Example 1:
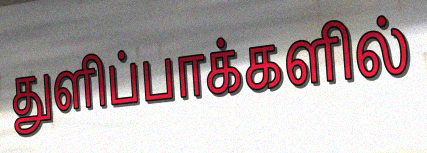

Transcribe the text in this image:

துளிப்பாக்களில்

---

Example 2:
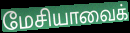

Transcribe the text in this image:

மேசியாவைக்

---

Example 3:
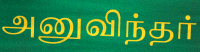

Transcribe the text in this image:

அனுவிந்தர்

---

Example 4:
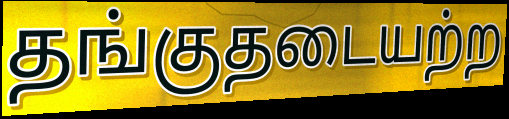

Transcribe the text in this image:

தங்குதடையற்ற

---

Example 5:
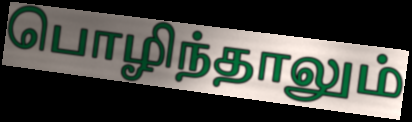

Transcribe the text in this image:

பொழிந்தாலும்